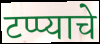
टप्प्याचे